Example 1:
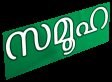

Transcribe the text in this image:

സമൂഹ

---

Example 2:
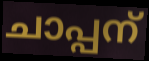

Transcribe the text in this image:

ചാപ്പന്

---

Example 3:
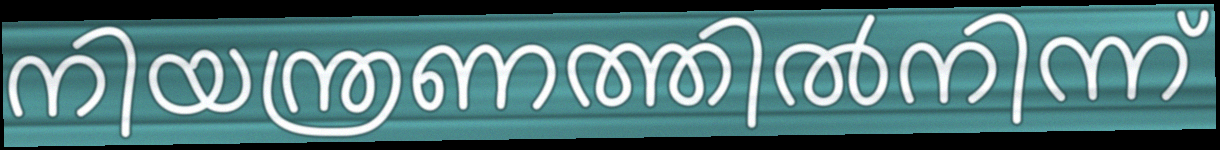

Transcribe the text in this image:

നിയന്ത്രണത്തിൽനിന്ന്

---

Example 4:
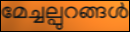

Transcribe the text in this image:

മേച്ചല്പുറങ്ങൾ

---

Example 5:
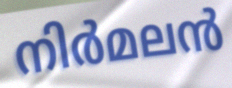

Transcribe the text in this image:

നിർമലൻ